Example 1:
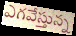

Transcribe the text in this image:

ఎగవేస్తున్న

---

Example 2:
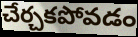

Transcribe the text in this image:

చేర్చకపోవడం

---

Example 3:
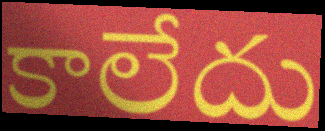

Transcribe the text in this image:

కాలేదు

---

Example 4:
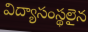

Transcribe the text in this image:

విద్యాసంస్థలైన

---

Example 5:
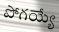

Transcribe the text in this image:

పోగయ్యే